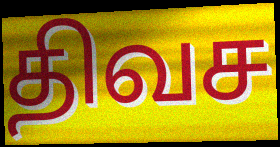
திவச